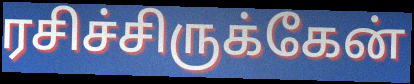
ரசிச்சிருக்கேன்